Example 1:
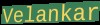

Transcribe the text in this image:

Velankar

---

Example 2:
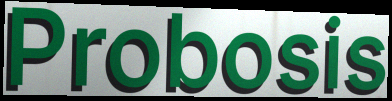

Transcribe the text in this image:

Probosis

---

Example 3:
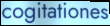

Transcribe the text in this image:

cogitationes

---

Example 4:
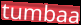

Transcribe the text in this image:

tumbaa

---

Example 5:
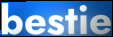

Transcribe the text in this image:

bestie